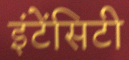
इंटेंसिटी